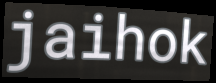
jaihok